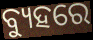
ବ୍ୟୁହରେ